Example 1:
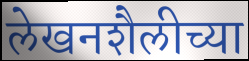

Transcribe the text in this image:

लेखनशैलीच्या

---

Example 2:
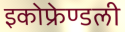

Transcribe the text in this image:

इकोफ्रेण्डली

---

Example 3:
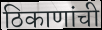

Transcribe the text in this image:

ठिकाणांची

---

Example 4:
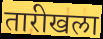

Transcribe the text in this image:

तारीखला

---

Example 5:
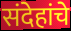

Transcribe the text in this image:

संदेहांचे